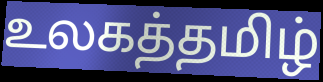
உலகத்தமிழ்